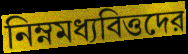
নিম্নমধ্যবিত্তদের